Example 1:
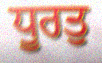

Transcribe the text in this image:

ਧੂਰਤੁ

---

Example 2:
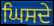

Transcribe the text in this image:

ਘਿਸਦੇ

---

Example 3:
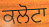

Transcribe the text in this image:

ਕਲੋਟਾ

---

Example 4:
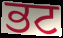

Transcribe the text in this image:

ਭਟ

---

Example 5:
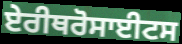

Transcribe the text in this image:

ਏਰੀਥਰੋਸਾਈਟਸ